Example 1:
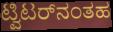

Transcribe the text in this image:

ಟ್ವಿಟರ್‌ನಂತಹ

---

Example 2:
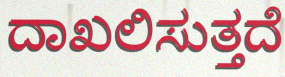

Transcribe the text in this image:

ದಾಖಲಿಸುತ್ತದೆ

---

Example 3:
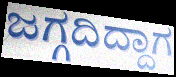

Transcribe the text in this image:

ಜಗ್ಗದಿದ್ದಾಗ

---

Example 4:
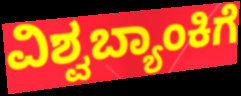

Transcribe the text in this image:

ವಿಶ್ವಬ್ಯಾಂಕಿಗೆ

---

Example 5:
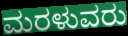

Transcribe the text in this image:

ಮರಳುವರು